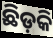
ଛିଡ଼କି